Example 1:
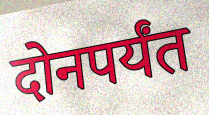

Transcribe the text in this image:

दोनपर्यंत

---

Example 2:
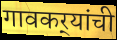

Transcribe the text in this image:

गावकर्यांची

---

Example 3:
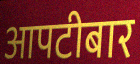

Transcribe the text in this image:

आपटीबार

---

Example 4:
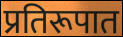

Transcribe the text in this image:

प्रतिरूपात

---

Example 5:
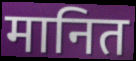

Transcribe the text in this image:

मानित